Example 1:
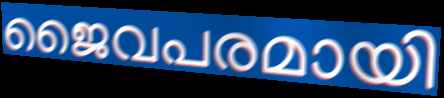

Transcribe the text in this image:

ജൈവപരമായി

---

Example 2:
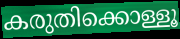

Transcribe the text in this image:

കരുതിക്കൊള്ളൂ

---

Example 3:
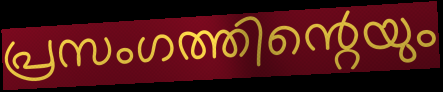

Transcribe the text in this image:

പ്രസംഗത്തിന്റെയും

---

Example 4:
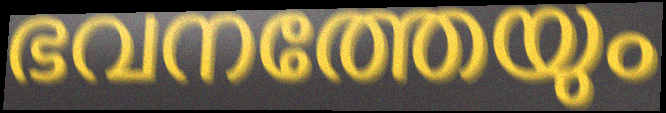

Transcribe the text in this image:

ഭവനത്തേയും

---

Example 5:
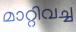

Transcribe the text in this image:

മാറ്റിവച്ച